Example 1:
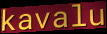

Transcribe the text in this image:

kavalu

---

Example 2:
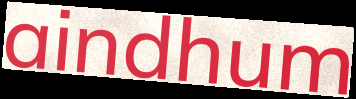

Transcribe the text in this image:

aindhum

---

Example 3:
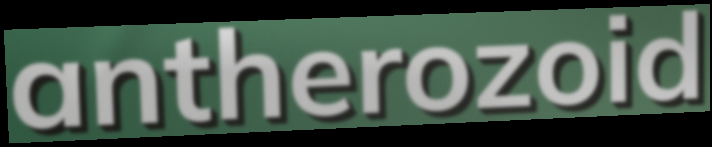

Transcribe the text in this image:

antherozoid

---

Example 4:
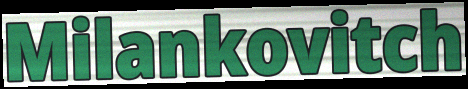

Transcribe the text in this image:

Milankovitch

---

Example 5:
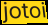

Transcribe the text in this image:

jotoi